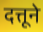
दत्तूने